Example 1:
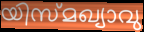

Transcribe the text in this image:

യിസ്മഖ്യാവു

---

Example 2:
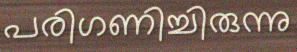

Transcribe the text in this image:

പരിഗണിച്ചിരുന്നു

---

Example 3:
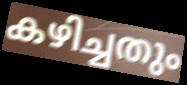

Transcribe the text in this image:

കഴിച്ചതും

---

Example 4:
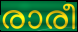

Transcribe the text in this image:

രാരീ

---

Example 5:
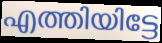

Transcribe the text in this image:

എത്തിയിട്ടേ